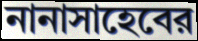
নানাসাহেবের